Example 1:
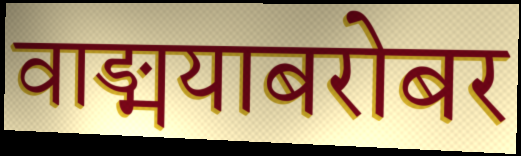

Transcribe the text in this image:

वाङ्मयाबरोबर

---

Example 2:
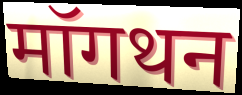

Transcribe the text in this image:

मॉगथन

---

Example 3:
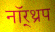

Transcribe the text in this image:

नॉर्थ्रप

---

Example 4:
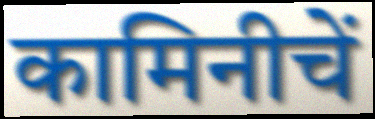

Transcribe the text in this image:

कामिनीचें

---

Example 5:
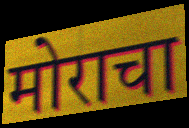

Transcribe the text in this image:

मोराचा